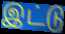
இட்டு